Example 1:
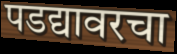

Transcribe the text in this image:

पडद्यावरचा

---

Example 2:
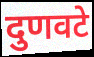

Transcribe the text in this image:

दुणवटे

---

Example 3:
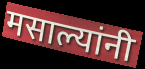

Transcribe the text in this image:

मसाल्यांनी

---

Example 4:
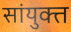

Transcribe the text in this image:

सांयुक्त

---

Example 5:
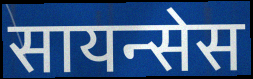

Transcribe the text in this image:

सायन्सेस